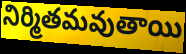
నిర్మితమవుతాయి